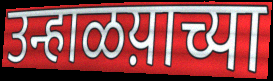
उन्हाळय़ाच्या